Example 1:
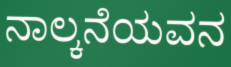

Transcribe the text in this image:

ನಾಲ್ಕನೆಯವನ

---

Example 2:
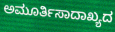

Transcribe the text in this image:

ಅಮೂರ್ತಿಸಾದಾಖ್ಯದ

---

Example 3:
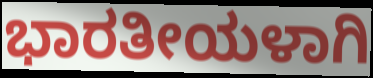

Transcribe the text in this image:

ಭಾರತೀಯಳಾಗಿ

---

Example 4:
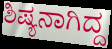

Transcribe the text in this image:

ಶಿಷ್ಯನಾಗಿದ್ದ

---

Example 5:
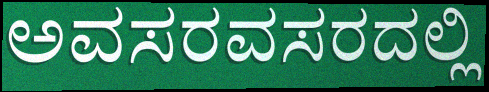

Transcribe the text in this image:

ಅವಸರವಸರದಲ್ಲಿ